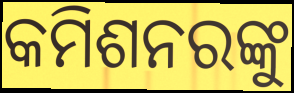
କମିଶନରଙ୍କୁ